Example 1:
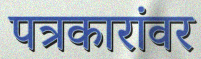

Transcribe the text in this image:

पत्रकारांवर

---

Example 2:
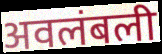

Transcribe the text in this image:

अवलंबली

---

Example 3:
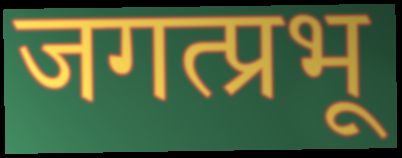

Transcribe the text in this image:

जगत्प्रभू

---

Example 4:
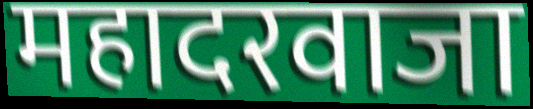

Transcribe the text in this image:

महादरवाजा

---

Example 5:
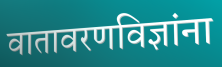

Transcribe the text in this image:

वातावरणविज्ञांना